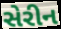
સેરીન